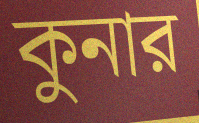
কুনার